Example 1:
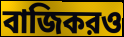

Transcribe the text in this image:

বাজিকরও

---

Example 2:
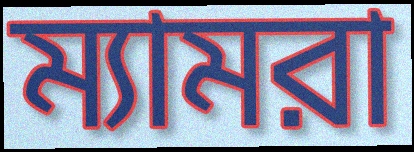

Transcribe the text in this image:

ম্যামরা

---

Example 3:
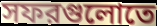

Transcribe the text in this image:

সফরগুলোতে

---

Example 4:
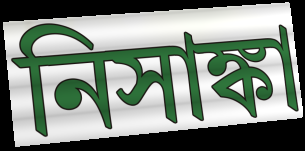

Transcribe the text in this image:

নিসাঙ্কা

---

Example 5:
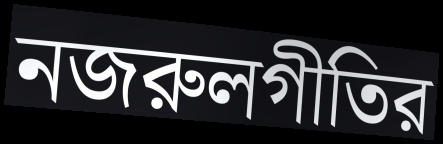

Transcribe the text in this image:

নজরুলগীতির